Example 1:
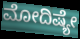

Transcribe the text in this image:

ಮೋದಿಷ್ಯೇ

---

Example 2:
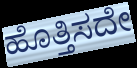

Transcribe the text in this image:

ಹೊತ್ತಿಸದೇ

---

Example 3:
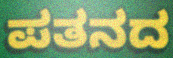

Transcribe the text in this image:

ಪತನದ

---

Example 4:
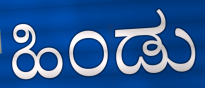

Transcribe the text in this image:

ಹಿಂಡು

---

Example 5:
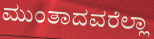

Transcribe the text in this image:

ಮುಂತಾದವರೆಲ್ಲಾ